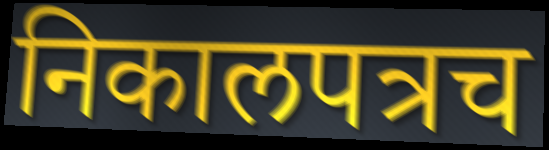
निकालपत्रच